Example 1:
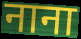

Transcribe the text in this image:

नाना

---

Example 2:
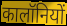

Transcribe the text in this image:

कालॉनियों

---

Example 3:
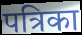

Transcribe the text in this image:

पत्रिका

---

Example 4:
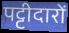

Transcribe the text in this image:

पट्टीदारों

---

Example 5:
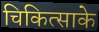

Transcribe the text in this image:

चिकित्साके